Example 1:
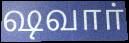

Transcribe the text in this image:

ஷவார்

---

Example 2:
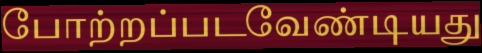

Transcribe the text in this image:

போற்றப்படவேண்டியது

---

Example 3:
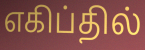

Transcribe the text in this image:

எகிப்தில்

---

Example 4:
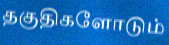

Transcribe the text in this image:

தகுதிகளோடும்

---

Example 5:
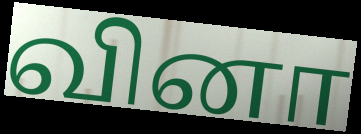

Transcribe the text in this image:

வினா